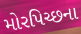
મોરપિચ્છના